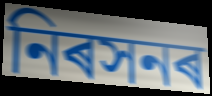
নিৰসনৰ